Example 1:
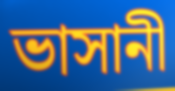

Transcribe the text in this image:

ভাসানী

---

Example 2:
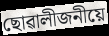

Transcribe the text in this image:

ছোৱালীজনীয়ে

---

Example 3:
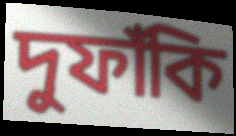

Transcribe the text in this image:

দুফাঁকি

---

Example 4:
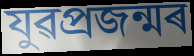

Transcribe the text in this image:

যুৱপ্ৰজন্মৰ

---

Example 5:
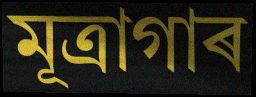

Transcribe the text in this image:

মূত্ৰাগাৰ